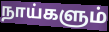
நாய்களும்